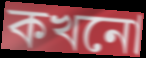
কখনো